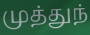
முத்துந்